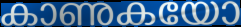
കാണുകയോ